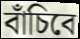
বাঁচিবে